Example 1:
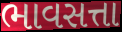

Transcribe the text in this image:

ભાવસત્તા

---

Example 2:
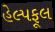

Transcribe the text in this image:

હેલ્પફૂલ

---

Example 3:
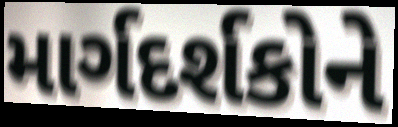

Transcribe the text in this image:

માર્ગદર્શકોને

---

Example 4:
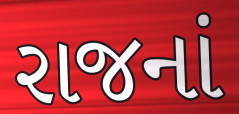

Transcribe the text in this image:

રાજનાં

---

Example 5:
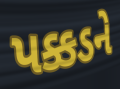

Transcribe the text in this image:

પક્કડને